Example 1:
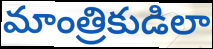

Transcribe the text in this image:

మాంత్రికుడిలా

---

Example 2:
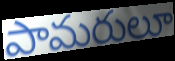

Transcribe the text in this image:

పామరులూ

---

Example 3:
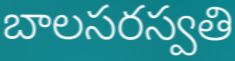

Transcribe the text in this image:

బాలసరస్వతి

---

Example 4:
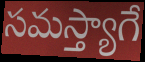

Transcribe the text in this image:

సమస్త్యాగే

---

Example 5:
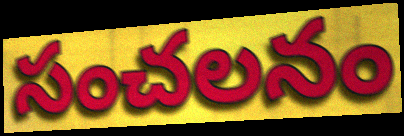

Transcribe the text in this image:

సంచలనం